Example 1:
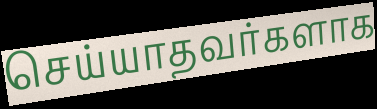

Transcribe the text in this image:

செய்யாதவர்களாக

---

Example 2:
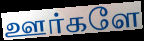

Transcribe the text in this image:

ஊர்களே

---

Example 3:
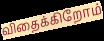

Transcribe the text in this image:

விதைக்கிறோம்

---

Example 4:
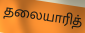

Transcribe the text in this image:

தலையாரித்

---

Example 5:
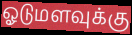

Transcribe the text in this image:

ஓடுமளவுக்கு